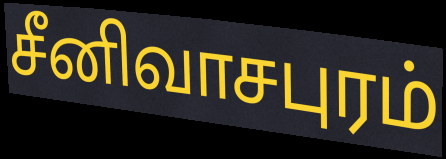
சீனிவாசபுரம்